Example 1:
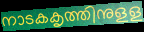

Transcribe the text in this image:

നാടകകൃത്തിനുളള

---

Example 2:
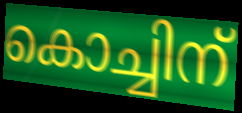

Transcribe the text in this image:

കൊച്ചിന്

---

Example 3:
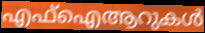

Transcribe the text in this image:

എഫ്ഐആറുകൾ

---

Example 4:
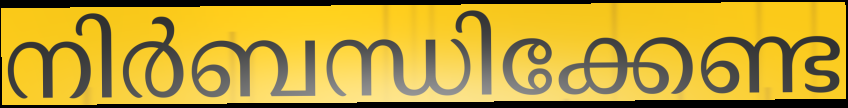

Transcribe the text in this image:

നിർബന്ധിക്കേണ്ട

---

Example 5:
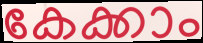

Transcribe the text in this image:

കേക്കാം